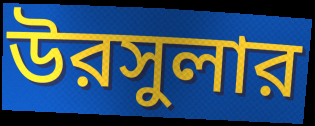
উরসুলার